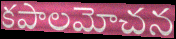
కపాలమోచన